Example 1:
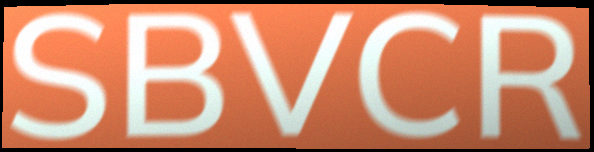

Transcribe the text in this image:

SBVCR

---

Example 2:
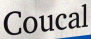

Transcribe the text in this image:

Coucal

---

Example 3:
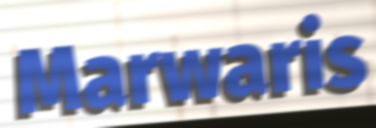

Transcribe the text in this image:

Marwaris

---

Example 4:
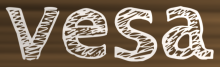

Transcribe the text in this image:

vesa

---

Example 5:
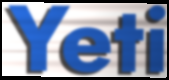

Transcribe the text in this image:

Yeti